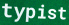
typist